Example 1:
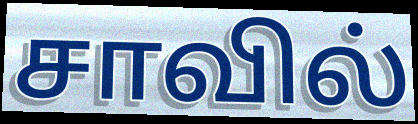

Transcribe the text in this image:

சாவில்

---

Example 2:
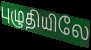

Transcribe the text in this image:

புழுதியிலே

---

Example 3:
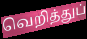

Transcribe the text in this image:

வெறித்துப்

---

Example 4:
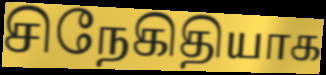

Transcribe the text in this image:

சிநேகிதியாக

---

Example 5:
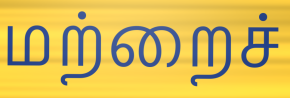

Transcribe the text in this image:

மற்றைச்